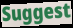
Suggest